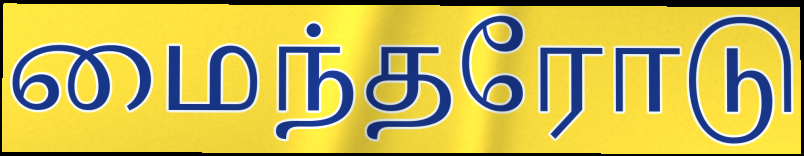
மைந்தரோடு